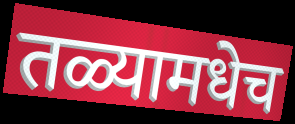
तळ्यामधेच